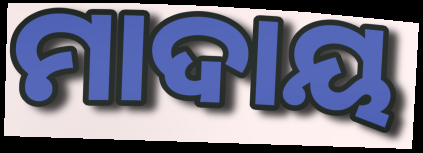
ମାଦାୟ